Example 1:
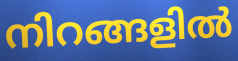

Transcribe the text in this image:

നിറങ്ങളിൽ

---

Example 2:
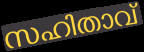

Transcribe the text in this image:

സഹിതാവ്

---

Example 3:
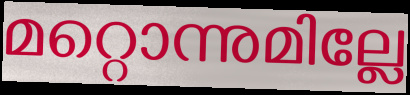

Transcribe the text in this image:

മറ്റൊന്നുമില്ലേ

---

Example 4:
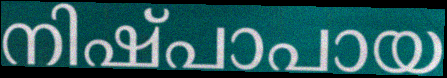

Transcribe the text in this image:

നിഷ്പാപായ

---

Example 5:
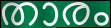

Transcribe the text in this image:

താരം